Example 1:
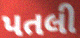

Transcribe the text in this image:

પતલી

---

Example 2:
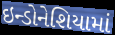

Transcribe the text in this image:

ઇન્ડોનેશિયામાં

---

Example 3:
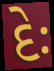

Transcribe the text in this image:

દેઃ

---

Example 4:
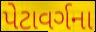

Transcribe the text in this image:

પેટાવર્ગના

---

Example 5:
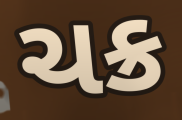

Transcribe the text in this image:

ચક્ર